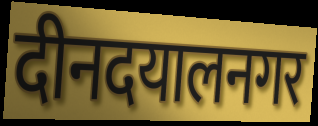
दीनदयालनगर